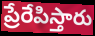
ప్రేరేపిస్తారు